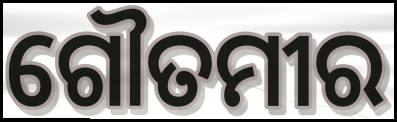
ଗୌତମୀର